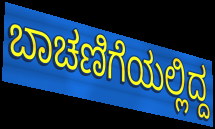
ಬಾಚಣಿಗೆಯಲ್ಲಿದ್ದ